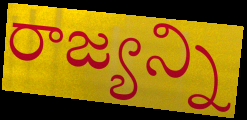
రాజ్యన్ని